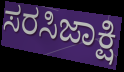
ಸರಸಿಜಾಕ್ಷಿ